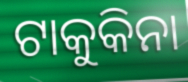
ଟାକୁକିନା